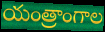
యంత్రాంగాల